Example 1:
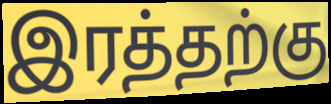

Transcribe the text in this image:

இரத்தற்கு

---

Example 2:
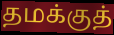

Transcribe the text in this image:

தமக்குத்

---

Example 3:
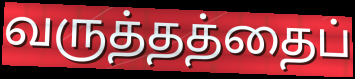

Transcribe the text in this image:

வருத்தத்தைப்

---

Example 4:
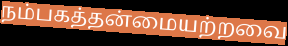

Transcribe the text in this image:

நம்பகத்தன்மையற்றவை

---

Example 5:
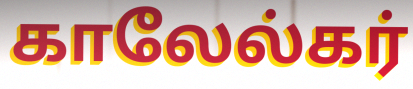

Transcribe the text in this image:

காலேல்கர்